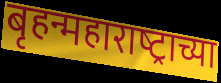
बृहन्महाराष्ट्राच्या